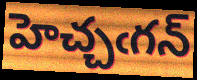
హెచ్చఁగన్